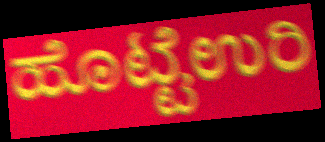
ಹೊಟ್ಟೆಉರಿ